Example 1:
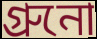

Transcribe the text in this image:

গ্রুনো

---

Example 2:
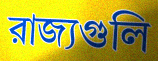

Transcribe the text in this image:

রাজ্যগুলি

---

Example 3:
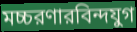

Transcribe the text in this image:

মচ্চরণারবিন্দযুগ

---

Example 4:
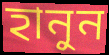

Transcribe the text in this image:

হানুন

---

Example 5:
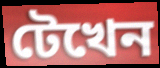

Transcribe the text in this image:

টেখেন